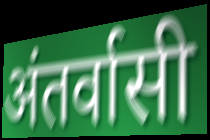
अंतर्वासी